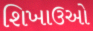
શિખાઉઓ